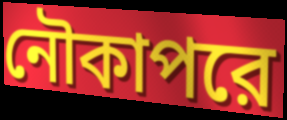
নৌকাপরে